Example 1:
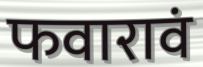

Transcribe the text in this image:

फवारावं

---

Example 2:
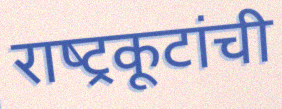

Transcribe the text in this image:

राष्ट्रकूटांची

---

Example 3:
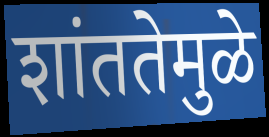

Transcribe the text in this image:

शांततेमुळे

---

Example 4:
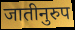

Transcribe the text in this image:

जातीनुरुप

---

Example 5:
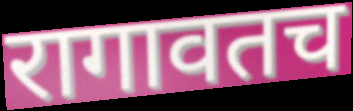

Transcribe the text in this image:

रागावतच